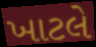
ખાટલે